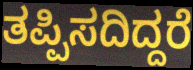
ತಪ್ಪಿಸದಿದ್ದರೆ